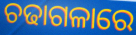
ଚଢାଗଳାରେ